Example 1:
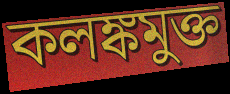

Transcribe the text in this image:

কলঙ্কমুক্ত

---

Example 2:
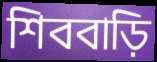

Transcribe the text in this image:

শিববাড়ি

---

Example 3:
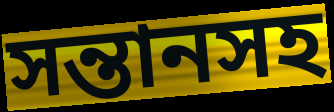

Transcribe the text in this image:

সন্তানসহ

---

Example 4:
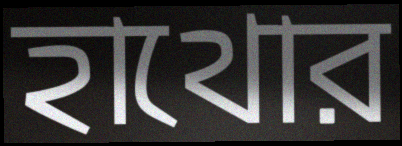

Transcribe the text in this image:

হাথোর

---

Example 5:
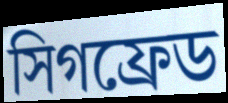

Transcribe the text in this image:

সিগফ্রেড